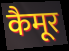
कैमूर